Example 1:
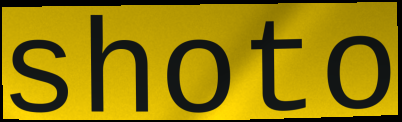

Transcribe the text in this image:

shoto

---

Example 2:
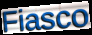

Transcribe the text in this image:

Fiasco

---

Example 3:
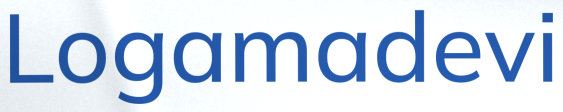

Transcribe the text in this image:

Logamadevi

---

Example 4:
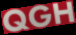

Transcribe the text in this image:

QGH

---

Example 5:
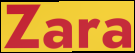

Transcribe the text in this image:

Zara